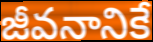
జీవనానికే